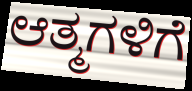
ಆತ್ಮಗಳಿಗೆ